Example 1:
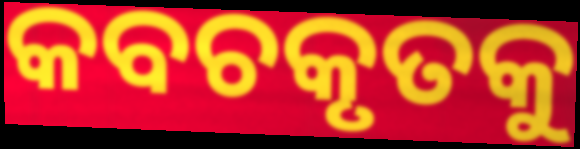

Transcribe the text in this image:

କବଚକୃତକୁ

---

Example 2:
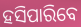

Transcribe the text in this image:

ହସିପାରିବେ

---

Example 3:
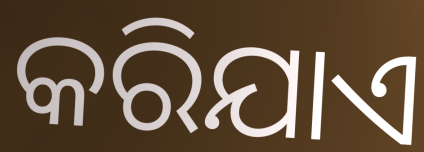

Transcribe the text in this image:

କରିଯାଏ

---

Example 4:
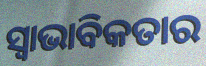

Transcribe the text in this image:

ସ୍ଵାଭାବିକତାର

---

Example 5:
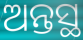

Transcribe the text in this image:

ଅନ୍ତସ୍ଥ